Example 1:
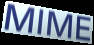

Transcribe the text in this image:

MIME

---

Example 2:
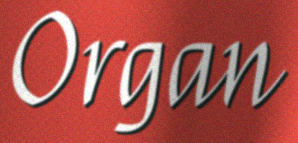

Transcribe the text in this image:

Organ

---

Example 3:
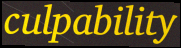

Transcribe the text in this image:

culpability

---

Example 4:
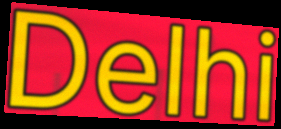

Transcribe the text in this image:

Delhi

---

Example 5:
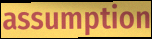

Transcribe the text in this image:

assumption